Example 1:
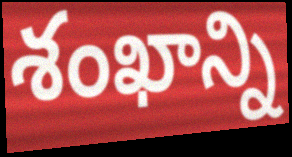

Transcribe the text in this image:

శంఖాన్ని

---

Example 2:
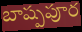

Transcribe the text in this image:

బాష్పపూర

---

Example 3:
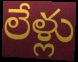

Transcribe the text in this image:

లేళ్లు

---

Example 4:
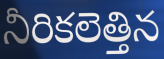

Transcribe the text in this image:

నీరికలెత్తిన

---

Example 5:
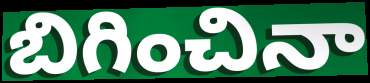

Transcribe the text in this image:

బిగించినా